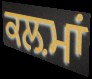
ਕਲ਼ਮਾਂ